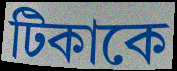
টিকাকে